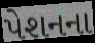
પેશનના